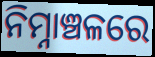
ନିମ୍ନାଞ୍ଚଳରେ